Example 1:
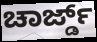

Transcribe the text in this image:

ಚಾರ್ಜ್ಡ್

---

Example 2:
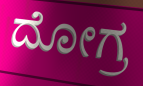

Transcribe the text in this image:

ದೋಗ್ರ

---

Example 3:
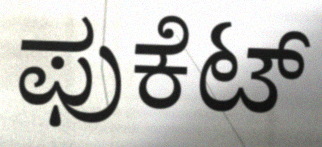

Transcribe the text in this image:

ಫುಕೆಟ್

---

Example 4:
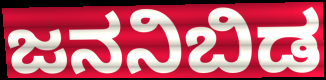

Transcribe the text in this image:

ಜನನಿಬಿಡ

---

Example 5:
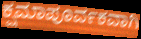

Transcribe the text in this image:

ಕ್ಷಮಾಪೂರ್ವಕವಾಗಿ